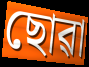
ছোৱা